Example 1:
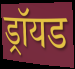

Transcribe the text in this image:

ड्रॉयड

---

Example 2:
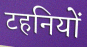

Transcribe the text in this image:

टहनियों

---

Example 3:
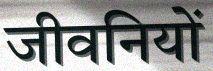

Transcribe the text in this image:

जीवनियों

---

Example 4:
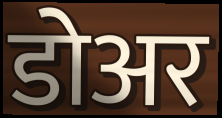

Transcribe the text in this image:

डोअर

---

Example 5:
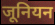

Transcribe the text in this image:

जूनियन